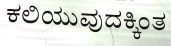
ಕಲಿಯುವುದಕ್ಕಿಂತ